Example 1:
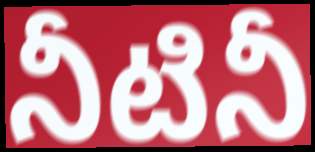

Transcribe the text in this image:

నీటినీ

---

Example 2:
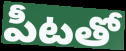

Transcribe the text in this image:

పీటతో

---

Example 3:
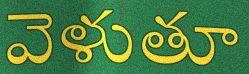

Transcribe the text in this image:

వెళుతూ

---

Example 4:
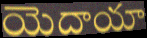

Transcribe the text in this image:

యెదాయా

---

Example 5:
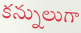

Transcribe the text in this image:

కన్నులుగా